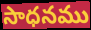
సాధనము